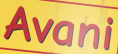
Avani